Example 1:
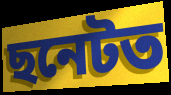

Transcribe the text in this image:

ছনেটত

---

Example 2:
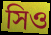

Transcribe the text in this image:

সিও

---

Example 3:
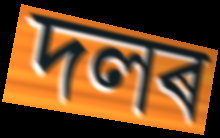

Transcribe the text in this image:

দলৰ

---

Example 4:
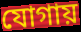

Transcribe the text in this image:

যোগায়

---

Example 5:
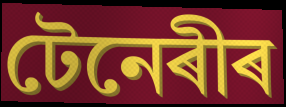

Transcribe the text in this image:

টেনেৰীৰ